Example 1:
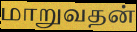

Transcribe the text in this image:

மாறுவதன்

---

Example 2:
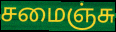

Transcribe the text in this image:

சமைஞ்சு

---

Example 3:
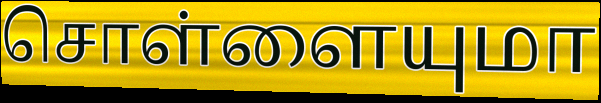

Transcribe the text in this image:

சொள்ளையுமா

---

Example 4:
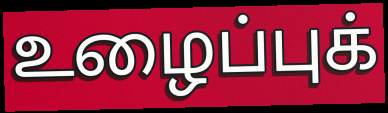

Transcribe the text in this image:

உழைப்புக்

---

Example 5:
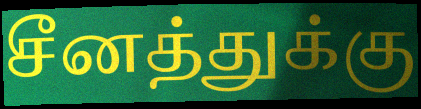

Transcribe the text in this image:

சீனத்துக்கு